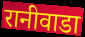
रानीवाडा